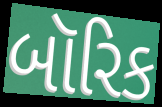
બૉરિક